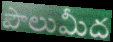
పౌలుమీద